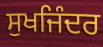
ਸੁਖਜਿੰਦਰ